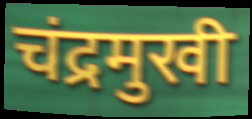
चंद्रमुखी